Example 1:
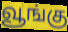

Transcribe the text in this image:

வூங்கு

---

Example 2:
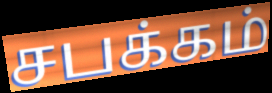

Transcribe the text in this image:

சபக்கம்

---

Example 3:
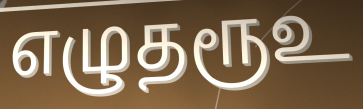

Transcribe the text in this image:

எழுதரூஉ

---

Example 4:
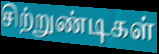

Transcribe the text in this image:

சிற்றுண்டிகள்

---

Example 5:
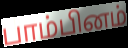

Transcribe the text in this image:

பாம்பினம்